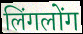
लिंगलोंग